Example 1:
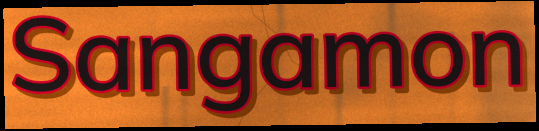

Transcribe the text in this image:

Sangamon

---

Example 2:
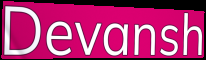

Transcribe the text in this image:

Devansh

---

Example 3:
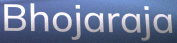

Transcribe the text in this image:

Bhojaraja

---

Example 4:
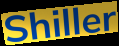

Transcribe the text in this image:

Shiller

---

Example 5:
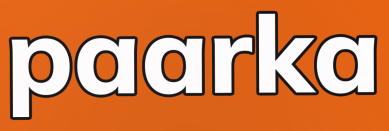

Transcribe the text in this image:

paarka